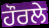
ਹੌਰਲੇ